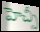
హెచ్సీ